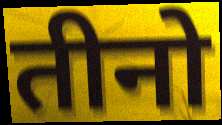
तीनो